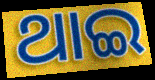
ଥାଇ